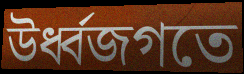
উর্ধ্বজগতে